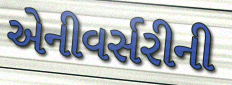
એનીવર્સરીની